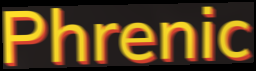
Phrenic